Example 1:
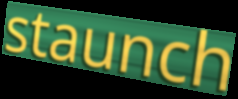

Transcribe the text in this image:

staunch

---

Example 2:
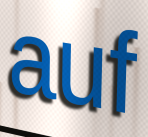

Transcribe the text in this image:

auf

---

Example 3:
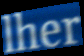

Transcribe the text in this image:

lher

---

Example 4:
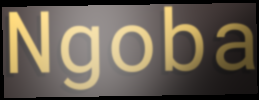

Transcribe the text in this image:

Ngoba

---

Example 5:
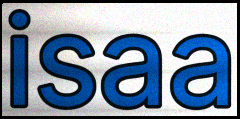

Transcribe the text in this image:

isaa